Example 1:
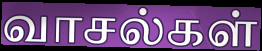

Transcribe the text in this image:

வாசல்கள்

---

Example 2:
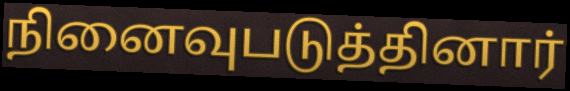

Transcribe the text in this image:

நினைவுபடுத்தினார்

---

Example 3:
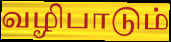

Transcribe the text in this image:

வழிபாடும்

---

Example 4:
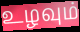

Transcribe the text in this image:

உழவும்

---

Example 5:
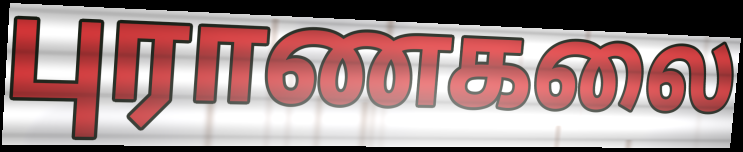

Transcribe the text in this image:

புராணகலை